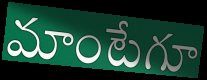
మాంటేగూ